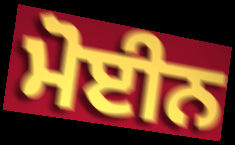
ਮੋਈਨ